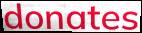
donates